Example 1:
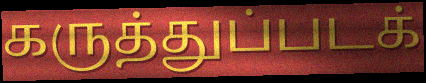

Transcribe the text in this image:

கருத்துப்படக்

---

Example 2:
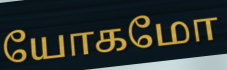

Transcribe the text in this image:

யோகமோ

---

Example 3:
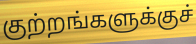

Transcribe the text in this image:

குற்றங்களுக்குச்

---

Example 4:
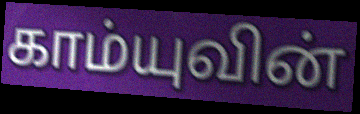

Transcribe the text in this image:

காம்யுவின்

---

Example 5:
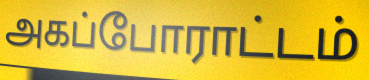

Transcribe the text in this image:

அகப்போராட்டம்